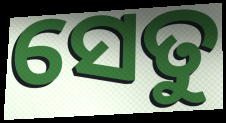
ସେତୁ